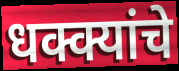
धक्क्यांचे